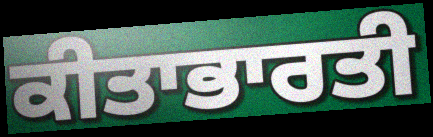
ਕੀਤਾਭਾਰਤੀ